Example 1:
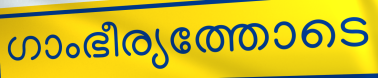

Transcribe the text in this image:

ഗാംഭീര്യത്തോടെ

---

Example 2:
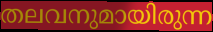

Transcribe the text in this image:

തലവനുമായിരുന്ന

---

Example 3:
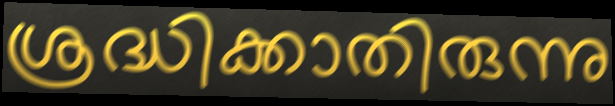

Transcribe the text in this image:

ശ്രദ്ധിക്കാതിരുന്നു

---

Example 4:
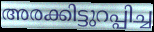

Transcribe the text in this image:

അരക്കിട്ടുറപ്പിച്ച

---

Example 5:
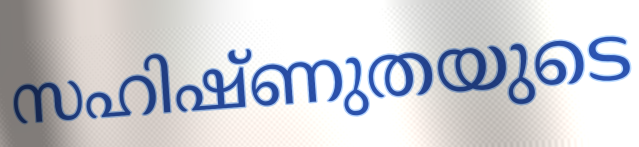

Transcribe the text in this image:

സഹിഷ്ണുതയുടെ